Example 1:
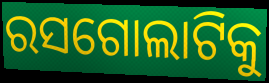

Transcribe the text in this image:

ରସଗୋଲାଟିକୁ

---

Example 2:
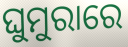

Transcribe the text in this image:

ଘୁମୁରାରେ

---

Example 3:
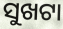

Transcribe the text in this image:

ସୁଖଟା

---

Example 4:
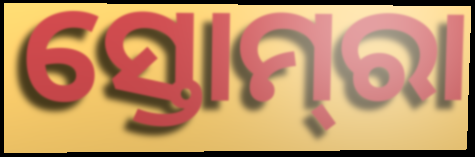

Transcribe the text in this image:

ସ୍ତୋମ୍‌ରା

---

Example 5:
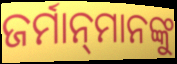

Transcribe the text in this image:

ଜର୍ମାନ୍‌ମାନଙ୍କୁ